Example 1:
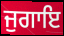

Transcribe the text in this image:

ਜੁਗਾਇ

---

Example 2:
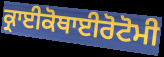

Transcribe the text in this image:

ਕ੍ਰਾਈਕੋਥਾਈਰੋਟੋਮੀ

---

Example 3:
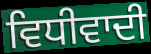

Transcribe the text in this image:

ਵਿਧੀਵਾਦੀ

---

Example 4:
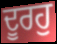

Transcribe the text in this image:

ਦੂਰਹੁ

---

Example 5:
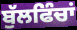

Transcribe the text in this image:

ਬੁੱਲਫਿੰਚਾਂ